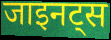
जाइनट्स